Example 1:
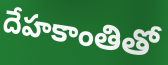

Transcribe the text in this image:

దేహకాంతితో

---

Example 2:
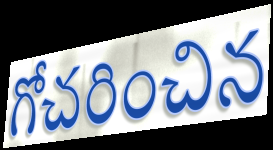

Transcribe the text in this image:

గోచరించిన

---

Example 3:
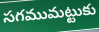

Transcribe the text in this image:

సగముమట్టుకు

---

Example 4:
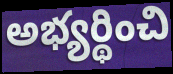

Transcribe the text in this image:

అభ్యర్థించి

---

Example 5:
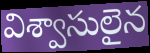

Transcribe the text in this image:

విశ్వాసులైన